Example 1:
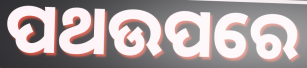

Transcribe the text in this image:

ପଥଉପରେ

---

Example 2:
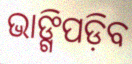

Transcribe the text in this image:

ଭାଙ୍ଗିପଡ଼ିବ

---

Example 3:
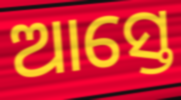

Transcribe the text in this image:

ଆସ୍ତେ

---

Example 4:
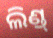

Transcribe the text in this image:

ଲିଣ୍ଡ୍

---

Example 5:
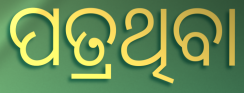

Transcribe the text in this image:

ପତ୍ରଥିବା